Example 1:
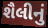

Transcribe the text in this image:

શૈલીનું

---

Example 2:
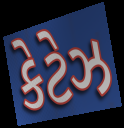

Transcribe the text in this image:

કેટેઝ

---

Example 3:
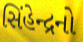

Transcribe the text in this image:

સિંહેન્દ્રનો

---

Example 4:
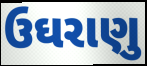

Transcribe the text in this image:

ઉઘરાણુ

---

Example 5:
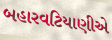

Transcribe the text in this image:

બહારવટિયાણીએ